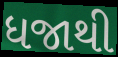
ધજાથી